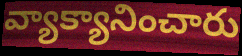
వ్యాక్యానించారు